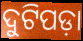
ଦୁଟିପଡ଼ା